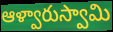
ఆళ్వారుస్వామి